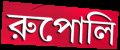
রুপোলি